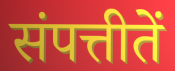
संपत्तीतें